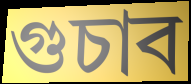
গুচাব